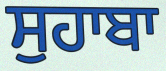
ਸੁਹਾਬਾ